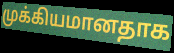
முக்கியமானதாக